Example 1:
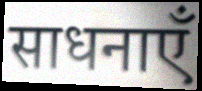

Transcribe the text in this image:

साधनाएँ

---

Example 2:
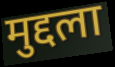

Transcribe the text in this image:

मुद्दला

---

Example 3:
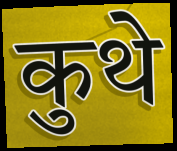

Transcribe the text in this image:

कुथे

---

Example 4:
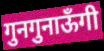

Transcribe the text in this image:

गुनगुनाऊँगी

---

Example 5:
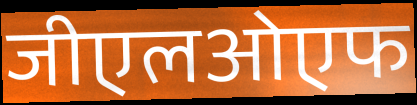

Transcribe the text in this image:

जीएलओएफ